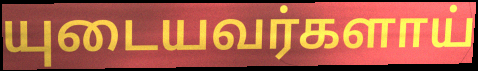
யுடையவர்களாய்